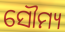
ସୌମ୍ଯ